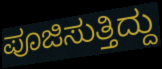
ಪೂಜಿಸುತ್ತಿದ್ದು